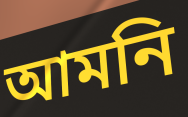
আমনি